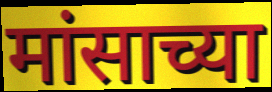
मांसाच्या